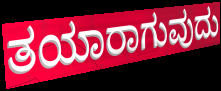
ತಯಾರಾಗುವುದು